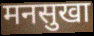
मनसुखा